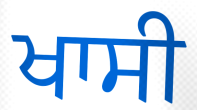
ਖਾਸੀ